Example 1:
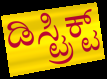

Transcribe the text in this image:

ಡಿಸ್ಟ್ರಿಕ್ಟ್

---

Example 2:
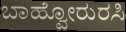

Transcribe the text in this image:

ಬಾಹ್ವೋರುರಸಿ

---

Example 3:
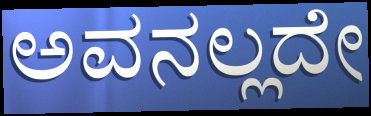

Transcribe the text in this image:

ಅವನಲ್ಲದೇ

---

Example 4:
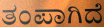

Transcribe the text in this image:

ತಂಪಾಗಿದೆ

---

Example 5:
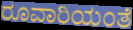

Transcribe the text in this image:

ರೂವಾರಿಯಂತೆ